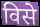
विसे